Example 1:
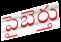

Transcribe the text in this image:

పైబెర్తు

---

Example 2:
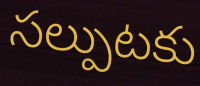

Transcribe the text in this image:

సల్పుటకు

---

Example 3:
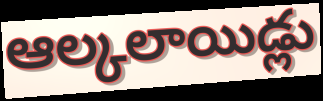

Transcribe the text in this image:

ఆల్కలాయిడ్లు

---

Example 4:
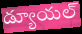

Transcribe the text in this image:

డ్యూయల్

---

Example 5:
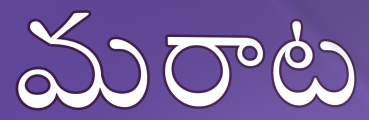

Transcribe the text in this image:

మరాట